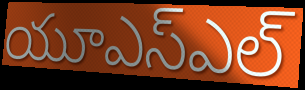
యూఎస్ఎల్